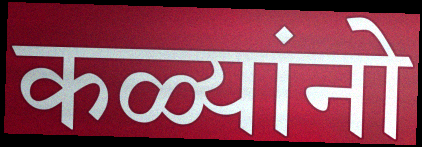
कळ्यांनो